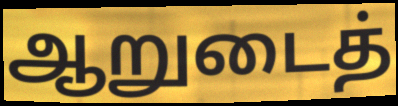
ஆறுடைத்